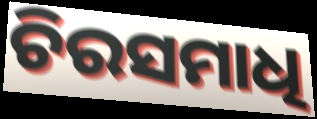
ଚିରସମାଧି